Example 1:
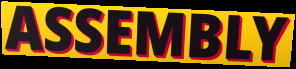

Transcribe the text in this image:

ASSEMBLY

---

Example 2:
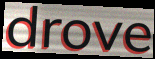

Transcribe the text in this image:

drove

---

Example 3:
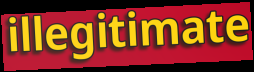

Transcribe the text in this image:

illegitimate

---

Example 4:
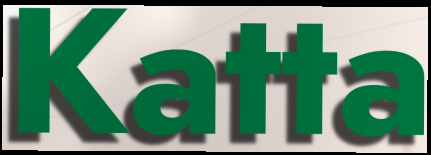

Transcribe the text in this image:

Katta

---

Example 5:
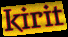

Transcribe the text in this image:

kirit